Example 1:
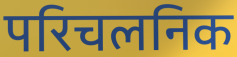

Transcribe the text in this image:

परिचलनिक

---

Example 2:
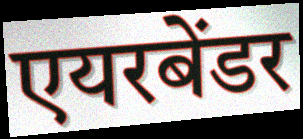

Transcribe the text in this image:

एयरबेंडर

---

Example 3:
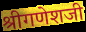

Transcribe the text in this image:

श्रीगणेशजी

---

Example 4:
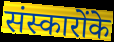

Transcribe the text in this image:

संस्कारोंके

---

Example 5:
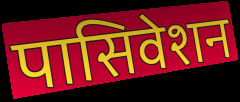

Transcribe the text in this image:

पासिवेशन